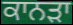
ਕਾਨੜਾ